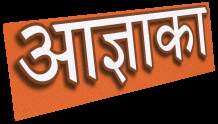
आज्ञाका